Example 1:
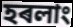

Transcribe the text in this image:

হৰলাং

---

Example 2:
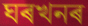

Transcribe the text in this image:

ঘৰখনৰ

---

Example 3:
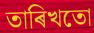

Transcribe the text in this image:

তাৰিখতো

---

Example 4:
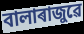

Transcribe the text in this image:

বালাৰাজুৱে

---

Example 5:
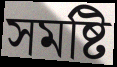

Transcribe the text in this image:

সমষ্টি